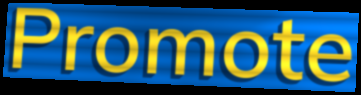
Promote